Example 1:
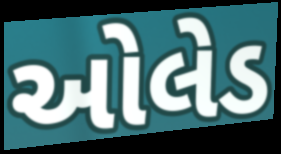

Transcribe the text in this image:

ઓલેડ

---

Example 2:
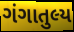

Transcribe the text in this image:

ગંગાતુલ્ય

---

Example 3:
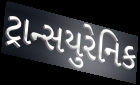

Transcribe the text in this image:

ટ્રાન્સયુરેનિક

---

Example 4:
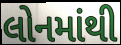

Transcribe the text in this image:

લોનમાંથી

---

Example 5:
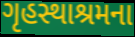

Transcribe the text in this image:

ગૃહસ્થાશ્રમના